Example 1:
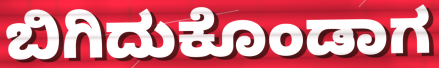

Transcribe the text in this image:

ಬಿಗಿದುಕೊಂಡಾಗ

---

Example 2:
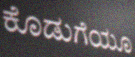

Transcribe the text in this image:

ಕೊಡುಗೆಯೂ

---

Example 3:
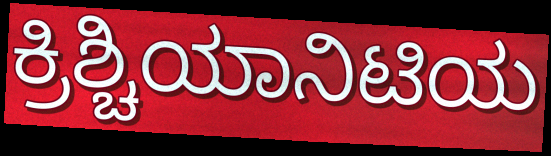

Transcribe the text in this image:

ಕ್ರಿಶ್ಚಿಯಾನಿಟಿಯ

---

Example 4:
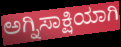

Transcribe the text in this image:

ಅಗ್ನಿಸಾಕ್ಷಿಯಾಗಿ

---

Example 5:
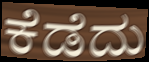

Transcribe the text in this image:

ಕೆಡೆದು